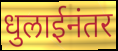
धुलाईनंतर